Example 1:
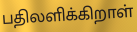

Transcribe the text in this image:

பதிலளிக்கிறாள்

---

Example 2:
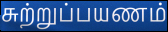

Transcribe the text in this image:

சுற்றுப்பயணம்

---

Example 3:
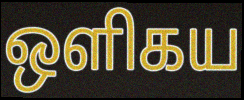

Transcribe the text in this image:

ஒளிகய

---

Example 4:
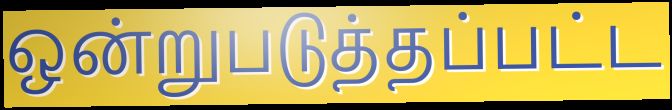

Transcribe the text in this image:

ஒன்றுபடுத்தப்பட்ட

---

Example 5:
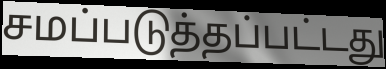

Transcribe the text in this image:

சமப்படுத்தப்பட்டது